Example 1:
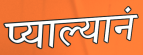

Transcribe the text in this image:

प्याल्यानं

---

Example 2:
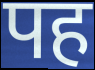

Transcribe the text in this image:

पह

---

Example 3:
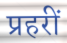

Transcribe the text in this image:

प्रहरीं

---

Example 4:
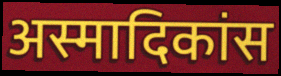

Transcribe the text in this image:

अस्मादिकांस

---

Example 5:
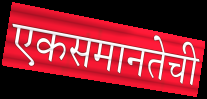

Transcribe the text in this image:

एकसमानतेची